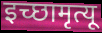
इच्छामृत्यू